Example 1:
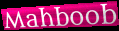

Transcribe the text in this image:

Mahboob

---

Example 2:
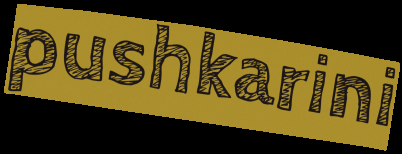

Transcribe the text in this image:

pushkarini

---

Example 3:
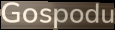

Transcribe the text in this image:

Gospodu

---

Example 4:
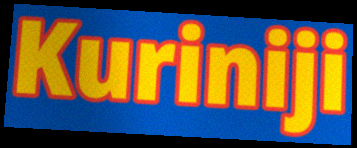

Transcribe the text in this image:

Kuriniji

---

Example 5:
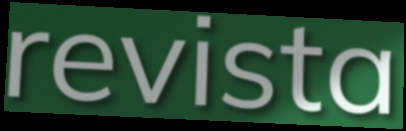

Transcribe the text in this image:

revista